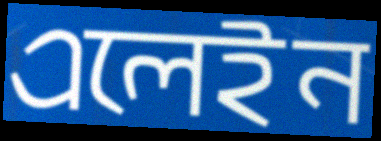
এলেইন